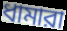
ধামারা